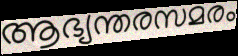
ആഭ്യന്തരസമരം